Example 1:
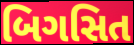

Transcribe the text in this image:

બિગસિત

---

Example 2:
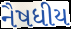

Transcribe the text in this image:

નૈષધીય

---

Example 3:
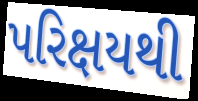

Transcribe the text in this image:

પરિક્ષયથી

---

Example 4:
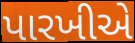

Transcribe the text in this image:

પારખીએ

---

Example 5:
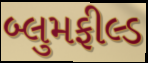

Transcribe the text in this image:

બ્લુમફીલ્ડ